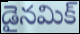
డైనమిక్